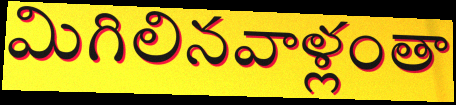
మిగిలినవాళ్లంతా